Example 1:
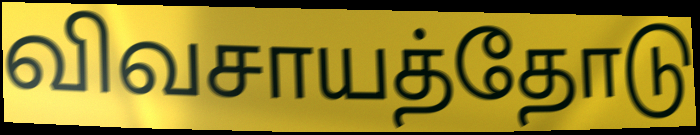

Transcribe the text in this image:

விவசாயத்தோடு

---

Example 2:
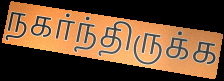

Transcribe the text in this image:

நகர்ந்திருக்க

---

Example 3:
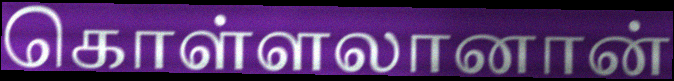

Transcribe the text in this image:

கொள்ளலானான்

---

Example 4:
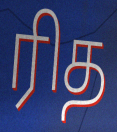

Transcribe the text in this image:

ரித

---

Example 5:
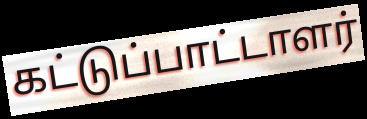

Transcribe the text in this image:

கட்டுப்பாட்டாளர்